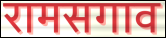
रामसगाव